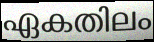
ഏകതിലം